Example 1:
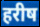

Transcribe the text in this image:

हरीष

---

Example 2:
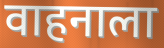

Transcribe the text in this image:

वाहनाला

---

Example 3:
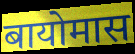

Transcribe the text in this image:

बायोमास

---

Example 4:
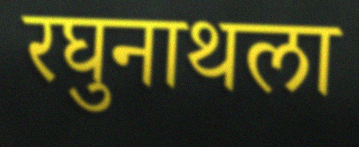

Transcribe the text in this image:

रघुनाथला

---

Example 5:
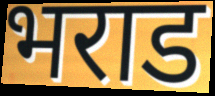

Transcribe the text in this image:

भराड